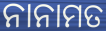
ନାନାମତ